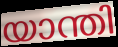
യാന്തി